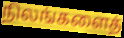
நிலங்களைத்